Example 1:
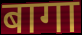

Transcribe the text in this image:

बागा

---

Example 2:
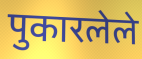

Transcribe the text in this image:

पुकारलेले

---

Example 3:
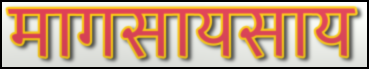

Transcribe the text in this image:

मागसायसाय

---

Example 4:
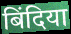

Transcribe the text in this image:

बिंदिया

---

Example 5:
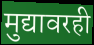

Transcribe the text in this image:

मुद्यावरही